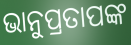
ଭାନୁପ୍ରତାପଙ୍କ